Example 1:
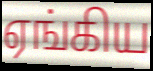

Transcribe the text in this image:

ஏங்கிய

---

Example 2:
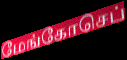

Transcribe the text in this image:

மேங்கோசெப்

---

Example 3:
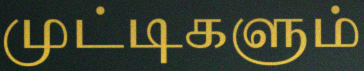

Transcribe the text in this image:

முட்டிகளும்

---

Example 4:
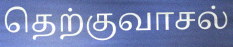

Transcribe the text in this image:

தெற்குவாசல்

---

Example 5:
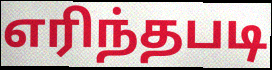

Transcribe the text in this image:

எரிந்தபடி